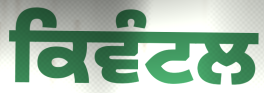
ਕਿਵੰਟਲ